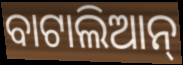
ବାଟାଲିଆନ୍